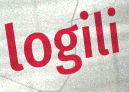
logili